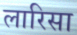
लारिसा